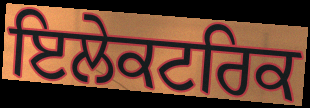
ਇਲੇਕਟਰਿਕ